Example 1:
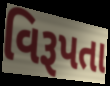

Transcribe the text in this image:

વિરૂપતા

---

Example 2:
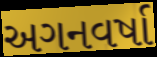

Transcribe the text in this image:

અગનવર્ષા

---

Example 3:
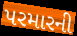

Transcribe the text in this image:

પરમારની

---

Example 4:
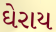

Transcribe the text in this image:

ઘેરાય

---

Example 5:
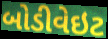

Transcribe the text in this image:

બોડીવેઇટ